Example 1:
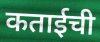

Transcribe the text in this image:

कताईची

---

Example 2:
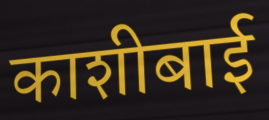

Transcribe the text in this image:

काशीबाई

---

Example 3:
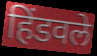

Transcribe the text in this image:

हिंडवले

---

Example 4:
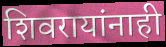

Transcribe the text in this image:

शिवरायांनाही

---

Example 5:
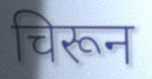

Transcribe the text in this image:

चिरून